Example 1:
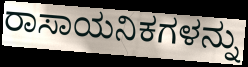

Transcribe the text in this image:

ರಾಸಾಯನಿಕಗಳನ್ನು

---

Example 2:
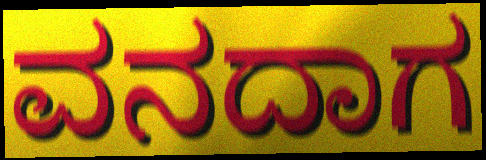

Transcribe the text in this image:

ವನದಾಗ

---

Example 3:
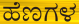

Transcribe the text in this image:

ಹೆಣಗಳ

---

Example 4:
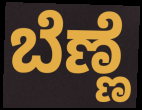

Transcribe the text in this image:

ಬೆಣ್ಣೆ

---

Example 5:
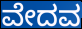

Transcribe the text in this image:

ವೇದವ